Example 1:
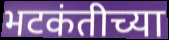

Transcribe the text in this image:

भटकंतीच्या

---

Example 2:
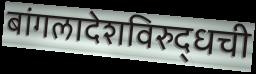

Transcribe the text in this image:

बांगलादेशविरुद्धची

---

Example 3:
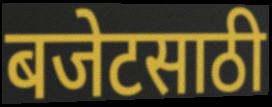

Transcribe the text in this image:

बजेटसाठी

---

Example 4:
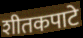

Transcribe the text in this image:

शीतकपाटे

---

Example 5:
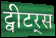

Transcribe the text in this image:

ट्वीटर्स